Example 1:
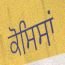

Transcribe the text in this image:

ਕੋਸਿਸਾਂ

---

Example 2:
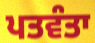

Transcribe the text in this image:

ਪਤਵੰਤਾ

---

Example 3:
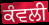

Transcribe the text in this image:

ਕੰਵਲੀ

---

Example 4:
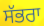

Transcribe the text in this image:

ਸੱਭਰਾ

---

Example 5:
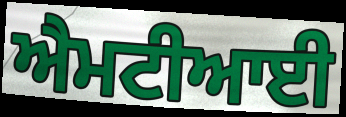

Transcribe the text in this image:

ਐਮਟੀਆਈ